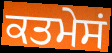
ਕਤਮੇਸਂ